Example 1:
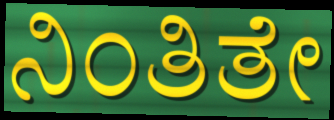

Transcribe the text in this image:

ನಿಂತಿತೇ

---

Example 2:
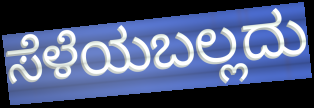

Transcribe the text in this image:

ಸೆಳೆಯಬಲ್ಲದು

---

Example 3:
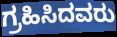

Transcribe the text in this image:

ಗ್ರಹಿಸಿದವರು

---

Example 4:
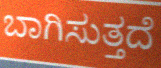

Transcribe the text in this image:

ಬಾಗಿಸುತ್ತದೆ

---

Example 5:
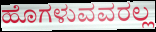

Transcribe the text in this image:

ಹೊಗಳುವವರಲ್ಲ